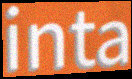
inta